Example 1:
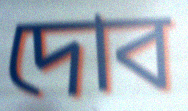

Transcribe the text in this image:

দোব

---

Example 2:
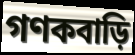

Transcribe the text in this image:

গণকবাড়ি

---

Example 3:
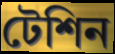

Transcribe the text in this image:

টেশিন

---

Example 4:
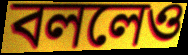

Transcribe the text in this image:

বললেও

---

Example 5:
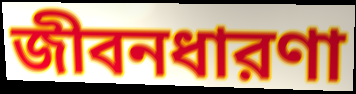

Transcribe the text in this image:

জীবনধারণা